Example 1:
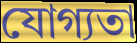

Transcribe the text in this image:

যোগ্যতা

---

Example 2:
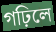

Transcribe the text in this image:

গঢ়িলে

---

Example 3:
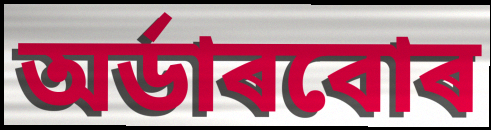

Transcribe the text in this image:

অৰ্ডাৰবোৰ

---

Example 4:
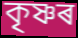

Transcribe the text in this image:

কৃষ্ণৰ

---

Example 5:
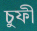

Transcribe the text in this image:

চুফী